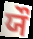
ਯੌ